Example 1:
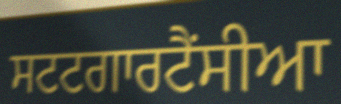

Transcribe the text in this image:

ਸਟਟਗਾਰਟੈਂਸੀਆ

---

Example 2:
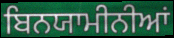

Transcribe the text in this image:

ਬਿਨਯਾਮੀਨੀਆਂ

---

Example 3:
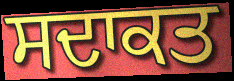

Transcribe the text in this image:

ਸਦਾਕਤ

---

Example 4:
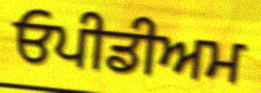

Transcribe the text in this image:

ਓਪੀਡੀਅਮ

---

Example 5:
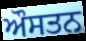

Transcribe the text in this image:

ਔਸਤਨ